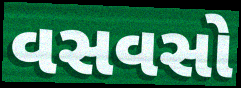
વસવસો